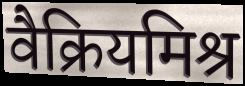
वैक्रियमिश्र